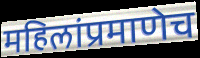
महिलांप्रमाणेच